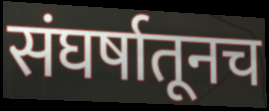
संघर्षातूनच